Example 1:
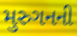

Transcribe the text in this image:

મુરુગનની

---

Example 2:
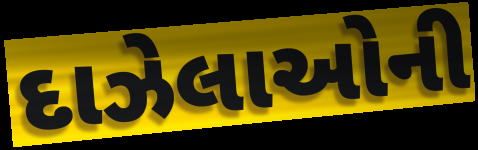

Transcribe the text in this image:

દાઝેલાઓની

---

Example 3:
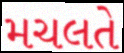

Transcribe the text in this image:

મચલતે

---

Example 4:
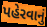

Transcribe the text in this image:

પહેરવાનું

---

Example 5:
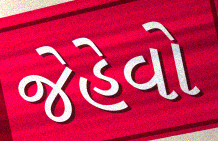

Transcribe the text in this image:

જેહેવો